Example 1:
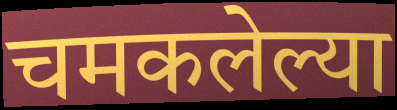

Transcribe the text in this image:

चमकलेल्या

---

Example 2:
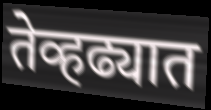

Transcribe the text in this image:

तेव्हढ्यात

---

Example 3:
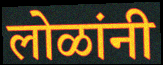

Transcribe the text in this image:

लोळांनी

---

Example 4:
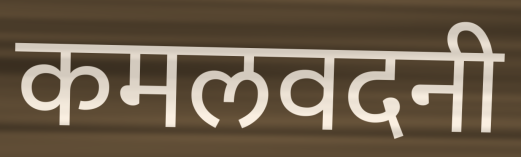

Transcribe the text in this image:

कमलवदनी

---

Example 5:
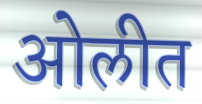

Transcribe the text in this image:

ओलीत